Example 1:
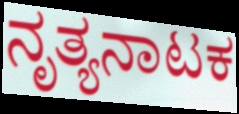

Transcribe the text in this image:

ನೃತ್ಯನಾಟಕ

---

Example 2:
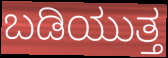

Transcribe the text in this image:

ಬಡಿಯುತ್ತ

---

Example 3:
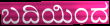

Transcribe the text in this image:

ಬದಿಯಿಂದ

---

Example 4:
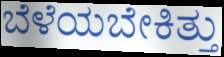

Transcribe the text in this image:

ಬೆಳೆಯಬೇಕಿತ್ತು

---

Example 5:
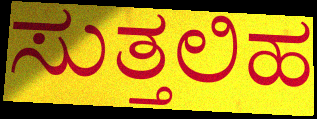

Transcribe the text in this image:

ಸುತ್ತಲಿಹ